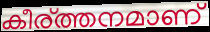
കീര്ത്തനമാണ്